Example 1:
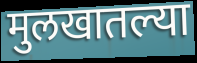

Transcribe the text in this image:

मुलखातल्या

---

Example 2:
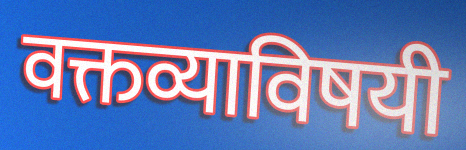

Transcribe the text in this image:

वक्तव्याविषयी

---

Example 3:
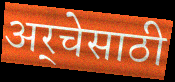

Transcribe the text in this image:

अर्चेसाठी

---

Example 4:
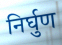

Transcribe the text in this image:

निर्घुण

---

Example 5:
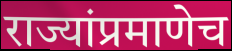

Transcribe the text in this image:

राज्यांप्रमाणेच